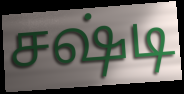
சஷ்டி